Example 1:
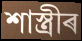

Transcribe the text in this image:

শাস্ত্ৰীৰ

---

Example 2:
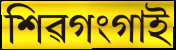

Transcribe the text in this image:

শিৱগংগাই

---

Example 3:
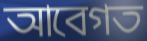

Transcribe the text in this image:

আবেগত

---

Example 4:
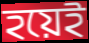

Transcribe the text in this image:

হয়েই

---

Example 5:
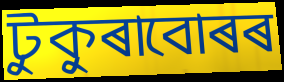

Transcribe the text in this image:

টুকুৰাবোৰৰ